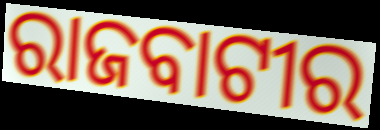
ରାଜବାଟୀର